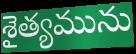
శైత్యమును